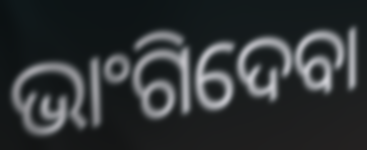
ଭାଂଗିଦେବା